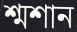
শ্মশান